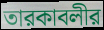
তারকাবলীর